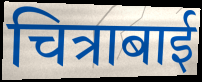
चित्राबाई